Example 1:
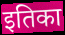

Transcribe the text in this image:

इतिका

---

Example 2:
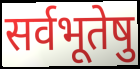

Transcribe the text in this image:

सर्वभूतेषु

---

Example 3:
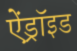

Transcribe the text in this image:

ऐंड्रॉइड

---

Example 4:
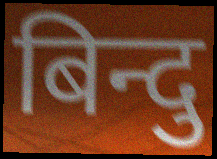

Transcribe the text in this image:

बिन्दु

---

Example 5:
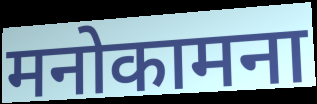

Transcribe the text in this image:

मनोकामना